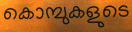
കൊമ്പുകളുടെ